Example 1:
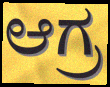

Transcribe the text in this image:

ಆಗ್ರ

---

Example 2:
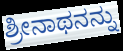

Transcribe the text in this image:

ಶ್ರೀನಾಥನನ್ನು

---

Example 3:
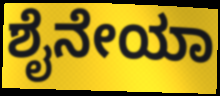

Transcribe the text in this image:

ಶೈನೇಯಾ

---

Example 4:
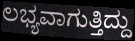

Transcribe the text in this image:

ಲಭ್ಯವಾಗುತ್ತಿದ್ದು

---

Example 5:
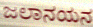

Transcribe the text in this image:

ಜಲಾನಯನ